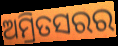
ଅମ୍ରିତସରର